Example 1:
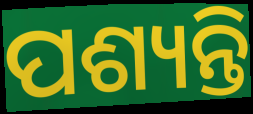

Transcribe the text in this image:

ପଶ୍ୟନ୍ତି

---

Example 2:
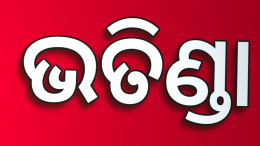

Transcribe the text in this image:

ଭତିଣ୍ଡା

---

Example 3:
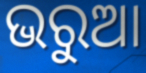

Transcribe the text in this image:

ଭରୁଆ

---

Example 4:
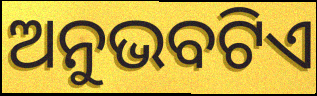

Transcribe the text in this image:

ଅନୁଭବଟିଏ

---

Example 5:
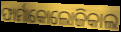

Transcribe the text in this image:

ଫାର୍ମାକୋଲୋଜିକାଲ